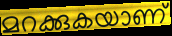
മറക്കുകയാണ്